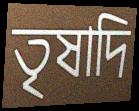
তৃষাদি